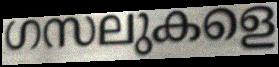
ഗസലുകളെ